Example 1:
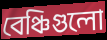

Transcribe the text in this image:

বেঞ্চিগুলো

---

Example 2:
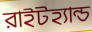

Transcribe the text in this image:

রাইটহ্যান্ড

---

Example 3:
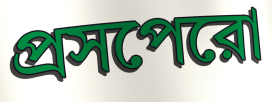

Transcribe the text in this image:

প্রসপেরো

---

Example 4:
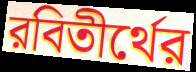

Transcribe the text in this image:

রবিতীর্থের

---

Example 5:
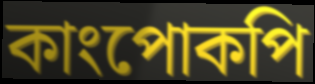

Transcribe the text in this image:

কাংপোকপি